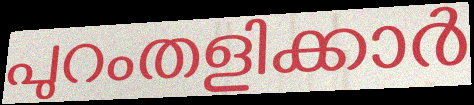
പുറംതളിക്കാർ